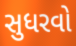
સુધરવો